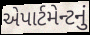
એપાર્ટમેન્ટનું